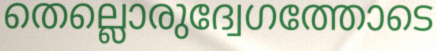
തെല്ലൊരുദ്വേഗത്തോടെ